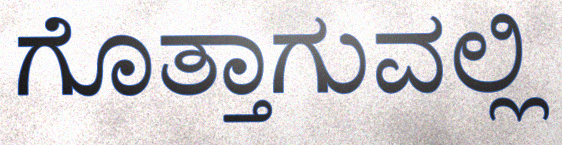
ಗೊತ್ತಾಗುವಲ್ಲಿ